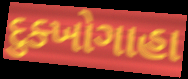
દુક્ખોગાહા